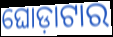
ଘୋଡ଼ାଟାର